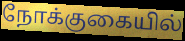
நோக்குகையில்